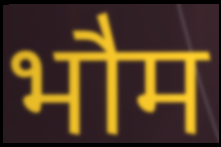
भौम